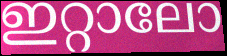
ഇറ്റാലോ